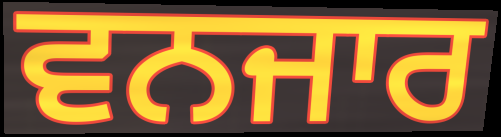
ਵਨਜਾਰ